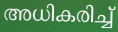
അധികരിച്ച്